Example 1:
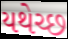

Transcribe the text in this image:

યથેચ્છ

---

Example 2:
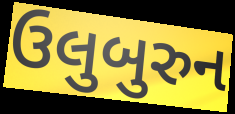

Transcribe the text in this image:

ઉલુબુરુન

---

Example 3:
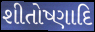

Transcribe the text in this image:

શીતોષ્ણાદિ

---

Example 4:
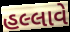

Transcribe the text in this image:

હલ્લાવે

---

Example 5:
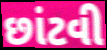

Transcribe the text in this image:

છાંટવી